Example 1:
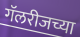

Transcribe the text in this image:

गॅलरीजच्या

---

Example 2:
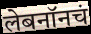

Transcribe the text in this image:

लेबनॉनचं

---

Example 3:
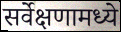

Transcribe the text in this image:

सर्वेक्षणामध्ये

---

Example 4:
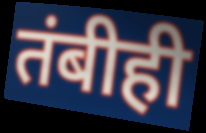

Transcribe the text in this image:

तंबीही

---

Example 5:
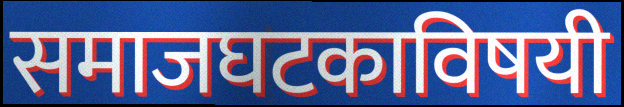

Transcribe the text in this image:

समाजघटकाविषयी